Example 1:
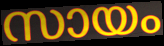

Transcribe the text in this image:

സായം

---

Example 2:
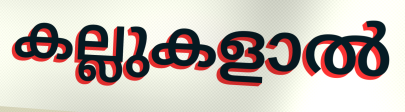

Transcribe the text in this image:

കല്ലുകളാൽ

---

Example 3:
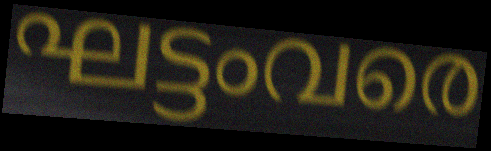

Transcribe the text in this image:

ഘട്ടംവരെ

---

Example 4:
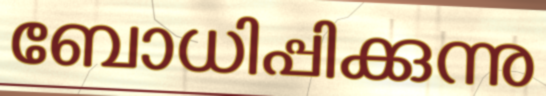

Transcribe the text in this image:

ബോധിപ്പിക്കുന്നു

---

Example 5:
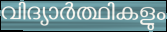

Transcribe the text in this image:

വിദ്യാർത്ഥികളും